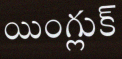
యింగ్లుక్